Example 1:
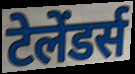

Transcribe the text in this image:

टेलेंडर्स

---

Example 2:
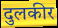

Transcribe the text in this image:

दुलकीर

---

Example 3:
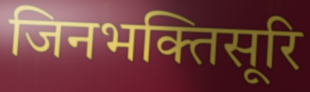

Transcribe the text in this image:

जिनभक्तिसूरि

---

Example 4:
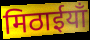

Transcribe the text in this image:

मिठाईयाँ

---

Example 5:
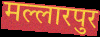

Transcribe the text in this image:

मल्लारपुर